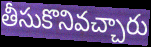
తీసుకొనివచ్చారు